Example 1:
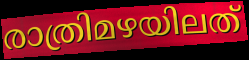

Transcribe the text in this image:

രാത്രിമഴയിലത്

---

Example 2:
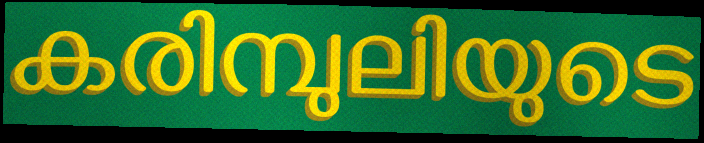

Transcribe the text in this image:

കരിമ്പുലിയുടെ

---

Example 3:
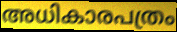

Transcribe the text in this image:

അധികാരപത്രം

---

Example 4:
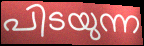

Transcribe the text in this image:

പിടയുന്ന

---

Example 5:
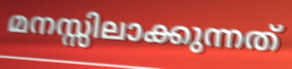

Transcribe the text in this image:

മനസ്സിലാക്കുന്നത്